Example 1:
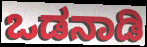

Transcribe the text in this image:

ಒಡನಾಡಿ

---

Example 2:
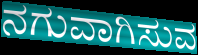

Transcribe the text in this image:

ನಗುವಾಗಿಸುವ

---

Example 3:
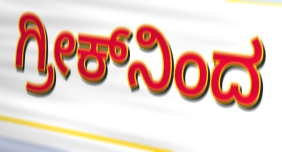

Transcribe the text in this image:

ಗ್ರೀಕ್‌ನಿಂದ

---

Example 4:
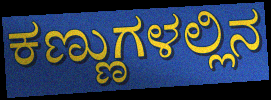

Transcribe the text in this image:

ಕಣ್ಣುಗಳಲ್ಲಿನ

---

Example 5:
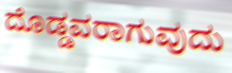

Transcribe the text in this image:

ದೊಡ್ಡವರಾಗುವುದು